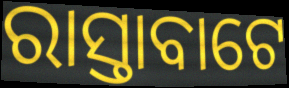
ରାସ୍ତାବାଟେ